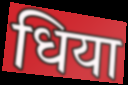
धिया